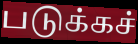
படுக்கச்